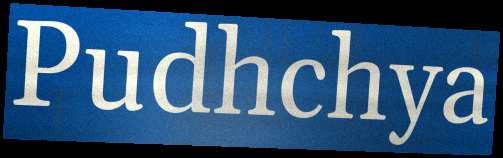
Pudhchya